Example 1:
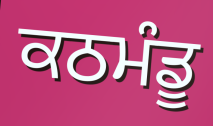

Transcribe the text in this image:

ਕਠਮੰਡੂ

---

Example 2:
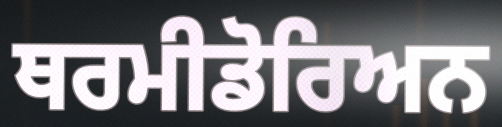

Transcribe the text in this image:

ਥਰਮੀਡੋਰਿਅਨ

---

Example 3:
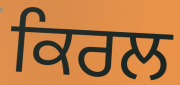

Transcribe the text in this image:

ਕਿਰਲ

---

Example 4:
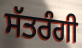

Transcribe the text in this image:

ਸੱਤਰੰਗੀ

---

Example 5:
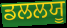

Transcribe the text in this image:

ਡਲਲਯੂ